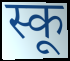
स्कू